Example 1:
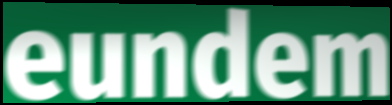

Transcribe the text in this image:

eundem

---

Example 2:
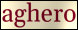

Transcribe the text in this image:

aghero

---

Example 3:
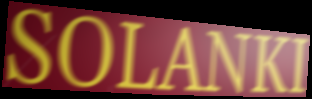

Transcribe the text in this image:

SOLANKI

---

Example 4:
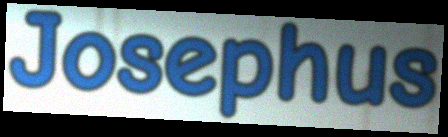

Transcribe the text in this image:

Josephus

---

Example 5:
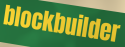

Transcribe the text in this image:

blockbuilder